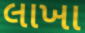
લાખા